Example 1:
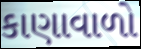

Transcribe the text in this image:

કાણાવાળો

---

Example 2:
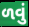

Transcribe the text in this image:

ળવું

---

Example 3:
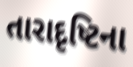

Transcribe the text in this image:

તારાદૃષ્ટિના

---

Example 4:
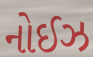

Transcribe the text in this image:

નોઈઝ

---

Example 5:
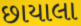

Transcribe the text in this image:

છાયાલા